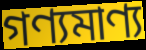
গণ্যমাণ্য